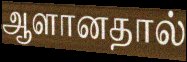
ஆளானதால்